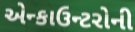
એન્કાઉન્ટરોની